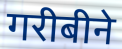
गरीबीने